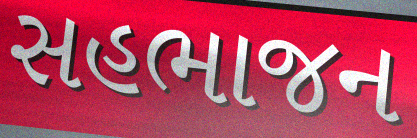
સહભાજન